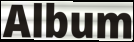
Album